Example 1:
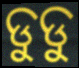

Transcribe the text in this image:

ଡୁଡୁ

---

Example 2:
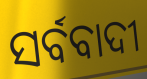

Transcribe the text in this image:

ସର୍ବବାଦୀ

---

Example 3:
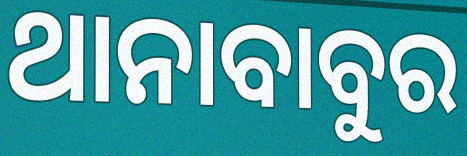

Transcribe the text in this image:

ଥାନାବାବୁର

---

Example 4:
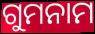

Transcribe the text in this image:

ଗୁମନାମ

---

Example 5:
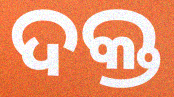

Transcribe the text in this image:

ଦକ୍ତ